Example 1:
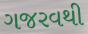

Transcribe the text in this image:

ગજરવથી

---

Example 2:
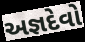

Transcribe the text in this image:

અજ્ઞદેવો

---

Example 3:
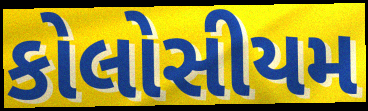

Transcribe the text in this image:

કોલોસીયમ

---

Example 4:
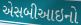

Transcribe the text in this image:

એસબીઆઇનો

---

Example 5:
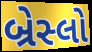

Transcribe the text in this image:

બ્રેસ્લો